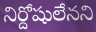
నిర్దోషులేనని